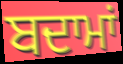
ਬਦਾਮਾਂ